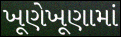
ખૂણેખૂણામાં